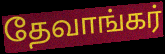
தேவாங்கர்